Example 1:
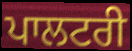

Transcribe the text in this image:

ਪਾਲਟਰੀ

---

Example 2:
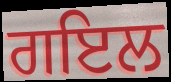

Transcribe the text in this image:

ਗਇਲ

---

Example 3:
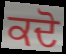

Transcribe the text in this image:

ਕਦੋ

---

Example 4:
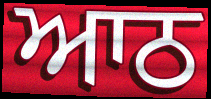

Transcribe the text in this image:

ਆਠ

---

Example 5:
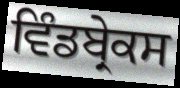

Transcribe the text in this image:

ਵਿੰਡਬ੍ਰੇਕਸ